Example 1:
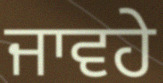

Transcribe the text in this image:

ਜਾਵਹੇ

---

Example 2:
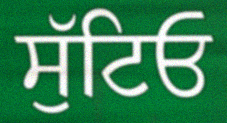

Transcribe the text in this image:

ਸੁੱਟਿਓ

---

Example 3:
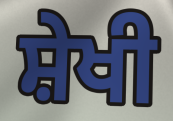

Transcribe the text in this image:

ਸ਼ੇਖੀ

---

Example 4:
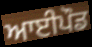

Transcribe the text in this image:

ਆਈਪੌਡ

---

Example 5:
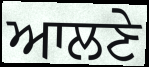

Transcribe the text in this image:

ਆਲਣੇ